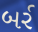
બર્ર